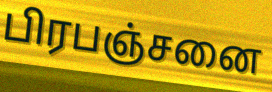
பிரபஞ்சனை